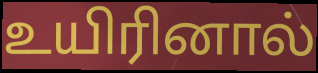
உயிரினால்